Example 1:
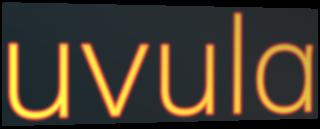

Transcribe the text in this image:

uvula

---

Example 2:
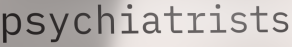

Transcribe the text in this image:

psychiatrists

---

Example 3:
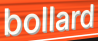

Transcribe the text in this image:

bollard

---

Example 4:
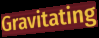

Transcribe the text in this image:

Gravitating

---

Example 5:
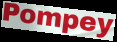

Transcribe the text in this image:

Pompey